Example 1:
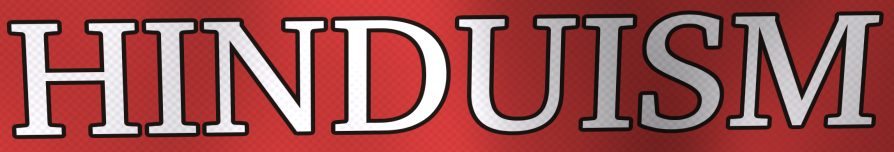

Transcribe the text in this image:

HINDUISM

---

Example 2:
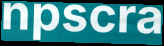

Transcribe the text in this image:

npscra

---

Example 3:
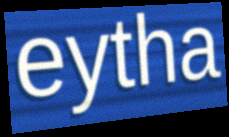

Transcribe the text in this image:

eytha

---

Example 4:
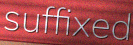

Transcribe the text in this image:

suffixed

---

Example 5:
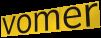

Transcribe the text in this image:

vomer